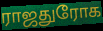
ராஜதுரோக